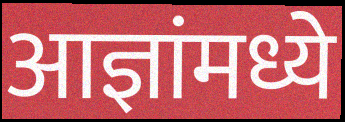
आज्ञांमध्ये